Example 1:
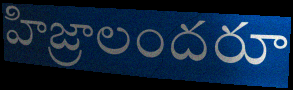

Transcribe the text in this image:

హిజ్రాలందరూ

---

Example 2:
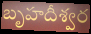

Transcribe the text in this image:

బృహదీశ్వర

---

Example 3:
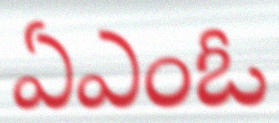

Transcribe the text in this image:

ఏఎంఓ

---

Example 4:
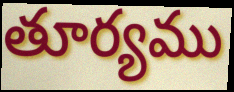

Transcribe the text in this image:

తూర్యము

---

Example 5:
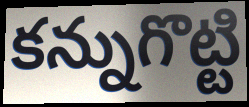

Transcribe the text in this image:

కన్నుగొట్టి